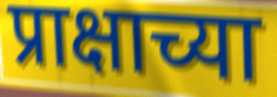
प्राक्षाच्या